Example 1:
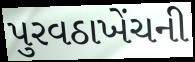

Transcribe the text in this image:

પુરવઠાખેંચની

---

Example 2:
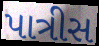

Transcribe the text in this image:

પાત્રીસ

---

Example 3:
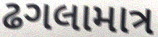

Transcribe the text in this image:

ઢગલામાત્ર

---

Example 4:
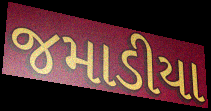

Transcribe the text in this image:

જમાડીયા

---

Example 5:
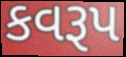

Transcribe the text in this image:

કવરૂપ